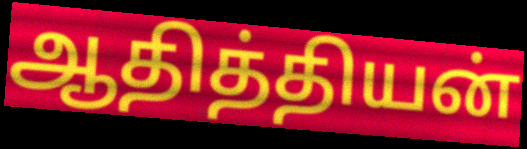
ஆதித்தியன்